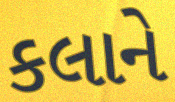
કલાને